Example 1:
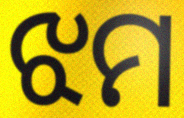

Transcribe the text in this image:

ଝମ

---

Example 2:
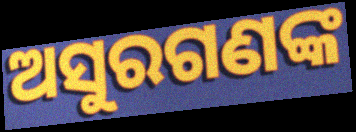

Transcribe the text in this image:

ଅସୁରଗଣଙ୍କ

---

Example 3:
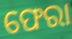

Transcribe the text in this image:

ଫେରା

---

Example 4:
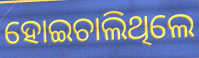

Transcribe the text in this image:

ହୋଇଚାଲିଥିଲେ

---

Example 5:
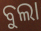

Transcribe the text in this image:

ବୁଲା